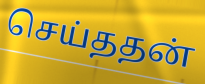
செய்ததன்